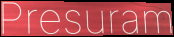
Presuram